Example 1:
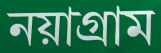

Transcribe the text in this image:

নয়াগ্রাম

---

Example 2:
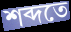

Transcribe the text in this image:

শব্দতে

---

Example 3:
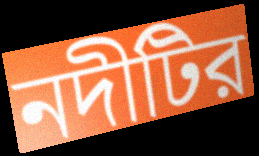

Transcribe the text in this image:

নদীটির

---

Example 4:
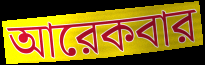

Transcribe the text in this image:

আরেকবার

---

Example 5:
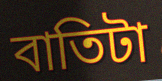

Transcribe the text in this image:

বাতিটা